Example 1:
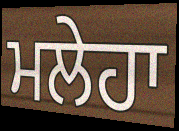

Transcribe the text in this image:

ਮਲੇਹਾ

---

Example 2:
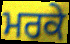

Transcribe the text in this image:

ਮਰਕੇ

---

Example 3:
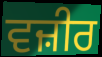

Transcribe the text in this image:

ਵਜ਼ੀਰ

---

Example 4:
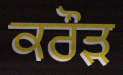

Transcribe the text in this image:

ਕਰੌੜ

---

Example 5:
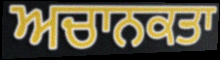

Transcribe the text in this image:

ਅਚਾਨਕਤਾ